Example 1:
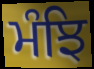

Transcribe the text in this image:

ਮੰਝਿ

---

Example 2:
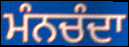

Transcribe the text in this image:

ਮੰਨਚੰਦਾ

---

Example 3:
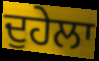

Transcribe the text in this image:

ਦੁਹੇਲਾ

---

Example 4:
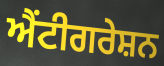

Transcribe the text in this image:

ਐਂਟੀਗਰੇਸ਼ਨ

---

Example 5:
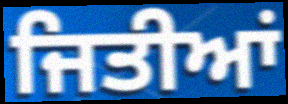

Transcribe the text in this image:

ਜਿਤੀਆਂ